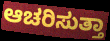
ಆಚರಿಸುತ್ತಾ